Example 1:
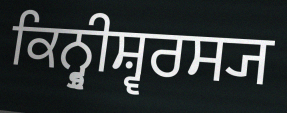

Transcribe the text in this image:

ਕਿਨ੍ਤ੍ਵੀਸ਼੍ਵਰਸ੍ਯ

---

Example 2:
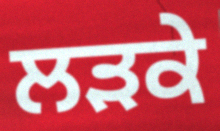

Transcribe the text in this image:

ਲਡ਼ਕੇ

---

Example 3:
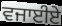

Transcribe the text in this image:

ਵਜਾਈਏ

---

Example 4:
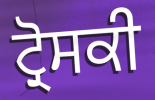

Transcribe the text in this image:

ਟ੍ਰੋਸਕੀ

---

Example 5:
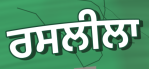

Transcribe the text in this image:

ਰਸਲੀਲਾ